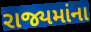
રાજ્યમાંના